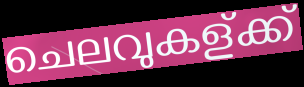
ചെലവുകള്ക്ക്